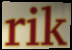
rik